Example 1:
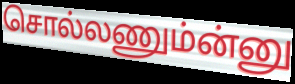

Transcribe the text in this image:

சொல்லணும்ன்னு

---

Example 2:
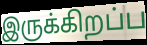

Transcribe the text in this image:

இருக்கிறப்ப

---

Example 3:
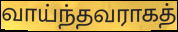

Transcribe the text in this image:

வாய்ந்தவராகத்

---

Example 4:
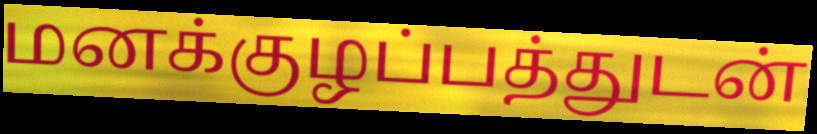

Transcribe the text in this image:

மனக்குழப்பத்துடன்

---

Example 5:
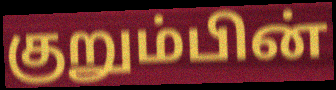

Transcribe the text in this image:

குறும்பின்